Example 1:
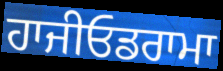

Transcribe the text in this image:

ਹਾਜੀਓਡਰਾਮਾ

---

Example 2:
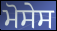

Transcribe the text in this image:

ਮੋਸੇਸ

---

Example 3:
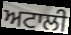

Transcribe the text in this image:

ਅਟਾਲੀ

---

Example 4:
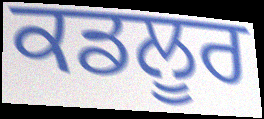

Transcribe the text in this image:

ਕਡਲੂਰ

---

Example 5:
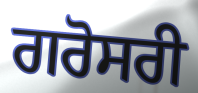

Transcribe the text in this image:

ਗਰੋਸਰੀ